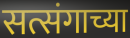
सत्संगाच्या